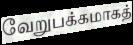
வேறுபக்கமாகத்